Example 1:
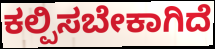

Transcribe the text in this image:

ಕಲ್ಪಿಸಬೇಕಾಗಿದೆ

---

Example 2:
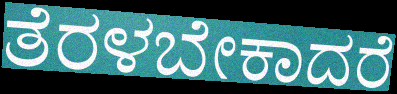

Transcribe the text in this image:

ತೆರಳಬೇಕಾದರೆ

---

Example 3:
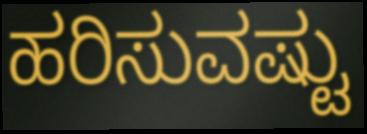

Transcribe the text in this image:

ಹರಿಸುವಷ್ಟು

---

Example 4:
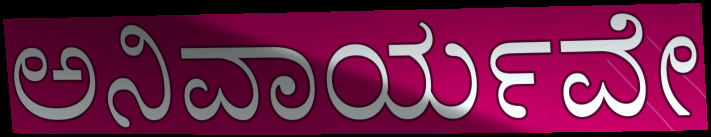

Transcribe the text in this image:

ಅನಿವಾರ್ಯವೇ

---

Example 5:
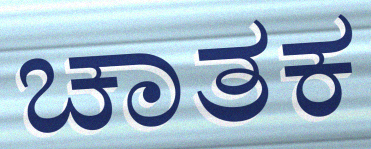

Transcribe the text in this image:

ಚಾತಕ